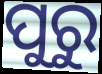
ପୁରୁ